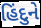
હિંદુને